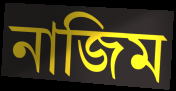
নাজিম